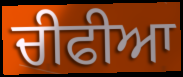
ਚੀਫੀਆ